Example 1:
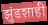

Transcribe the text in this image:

झुंडशाही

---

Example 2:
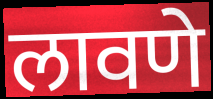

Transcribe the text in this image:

लावणे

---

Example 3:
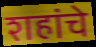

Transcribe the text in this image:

शहांचे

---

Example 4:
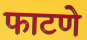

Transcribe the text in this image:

फाटणे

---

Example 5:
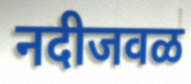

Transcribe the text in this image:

नदीजवळ